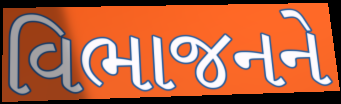
વિભાજનને